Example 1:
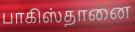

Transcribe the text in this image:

பாகிஸ்தானை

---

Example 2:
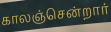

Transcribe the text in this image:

காலஞ்சென்றார்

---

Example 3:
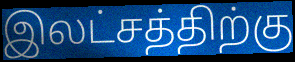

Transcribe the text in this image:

இலட்சத்திற்கு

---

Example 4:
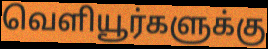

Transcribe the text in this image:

வெளியூர்களுக்கு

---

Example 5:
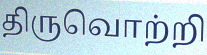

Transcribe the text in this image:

திருவொற்றி